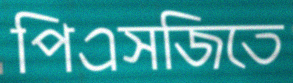
পিএসজিতে